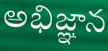
అభిజ్ఞాన